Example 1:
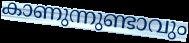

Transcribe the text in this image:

കാണുന്നുണ്ടാവും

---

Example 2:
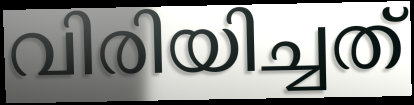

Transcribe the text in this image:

വിരിയിച്ചത്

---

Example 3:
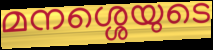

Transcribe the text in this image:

മനശ്ശെയുടെ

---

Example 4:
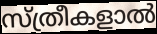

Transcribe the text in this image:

സ്ത്രീകളാൽ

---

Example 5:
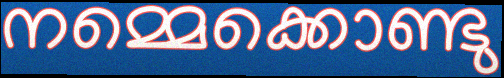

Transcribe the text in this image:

നമ്മെക്കൊണ്ടു